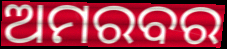
ଅମରବର